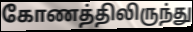
கோணத்திலிருந்து